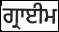
ਗ੍ਰਾਈਮ